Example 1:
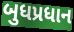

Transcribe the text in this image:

બુધપ્રધાન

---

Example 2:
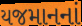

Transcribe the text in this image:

યજમાનનાં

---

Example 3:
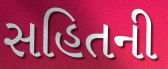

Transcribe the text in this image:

સહિતની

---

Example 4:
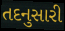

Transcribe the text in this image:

તદનુસારી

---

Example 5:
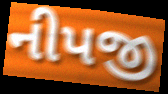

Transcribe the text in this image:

નીપજી